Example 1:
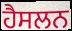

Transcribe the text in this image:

ਹੈਸਲਨ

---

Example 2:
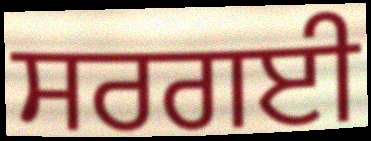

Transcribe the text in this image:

ਸਰਗਈ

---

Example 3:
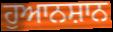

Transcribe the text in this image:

ਹੁਆਨਸ਼ਾਨ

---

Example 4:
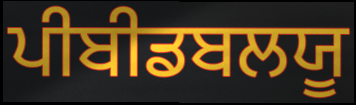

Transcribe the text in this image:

ਪੀਬੀਡਬਲਯੂ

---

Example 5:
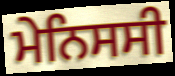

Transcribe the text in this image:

ਮੇਨਿਸਸੀ